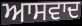
ਆਸਵਾਦ